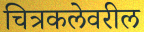
चित्रकलेवरील